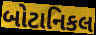
બોટાનિકલ